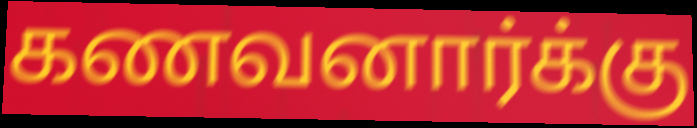
கணவனார்க்கு